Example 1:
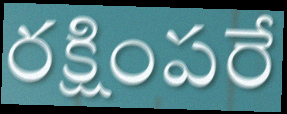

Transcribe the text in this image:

రక్షింపరే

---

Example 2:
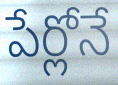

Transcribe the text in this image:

పేర్లోనే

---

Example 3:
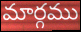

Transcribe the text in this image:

మార్గము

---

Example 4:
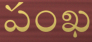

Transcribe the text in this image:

పంఖ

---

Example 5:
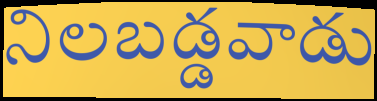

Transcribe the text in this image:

నిలబడ్డవాడు